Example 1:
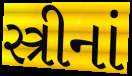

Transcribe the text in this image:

સ્ત્રીનાં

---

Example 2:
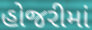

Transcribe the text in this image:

હોજરીમાં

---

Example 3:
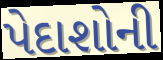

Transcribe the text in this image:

પેદાશોની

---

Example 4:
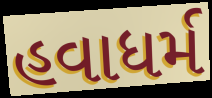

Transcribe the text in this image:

હવાધર્મ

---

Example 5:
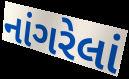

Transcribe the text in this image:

નાંગરેલાં